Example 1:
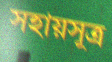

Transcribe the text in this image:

সহায়সূত্র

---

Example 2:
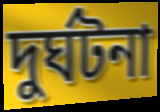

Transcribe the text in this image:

দুর্ঘটনা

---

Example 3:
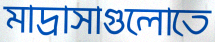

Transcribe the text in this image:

মাদ্রাসাগুলোতে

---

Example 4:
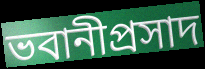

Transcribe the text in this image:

ভবানীপ্রসাদ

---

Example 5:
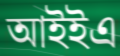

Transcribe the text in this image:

আইইএ